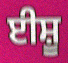
ਈਸ਼ੂ